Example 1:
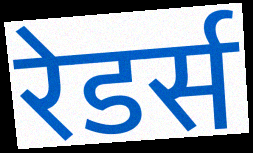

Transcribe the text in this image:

रेडर्स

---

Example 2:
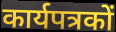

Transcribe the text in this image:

कार्यपत्रकों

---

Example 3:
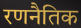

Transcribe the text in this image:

रणनैतिक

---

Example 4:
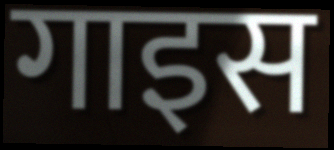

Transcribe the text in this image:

गाइस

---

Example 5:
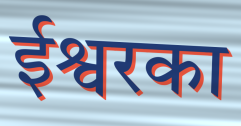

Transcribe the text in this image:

ईश्वरका